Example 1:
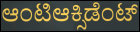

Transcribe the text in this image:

ಆಂಟಿಆಕ್ಸಿಡೆಂಟ್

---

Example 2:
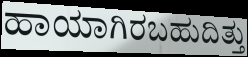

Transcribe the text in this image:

ಹಾಯಾಗಿರಬಹುದಿತ್ತು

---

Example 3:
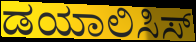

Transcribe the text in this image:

ಡಯಾಲಿಸಿಸ್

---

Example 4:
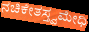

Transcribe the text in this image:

ನಚಿಕೇತಸ್ತ್ವಮೇಧಿ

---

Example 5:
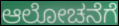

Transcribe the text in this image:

ಆಲೋಚನೆಗೆ